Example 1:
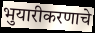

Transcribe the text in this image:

भुयारीकरणाचे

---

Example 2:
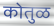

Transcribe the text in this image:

कोतुळ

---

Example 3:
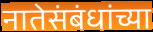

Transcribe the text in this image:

नातेसंबंधांच्या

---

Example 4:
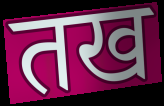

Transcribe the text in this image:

तख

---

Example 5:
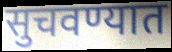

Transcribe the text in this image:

सुचवण्यात